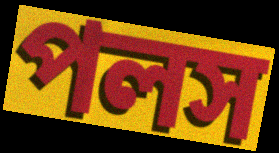
পলস